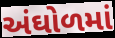
અંઘોળમાં